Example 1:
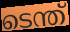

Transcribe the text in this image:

ടെന്ത്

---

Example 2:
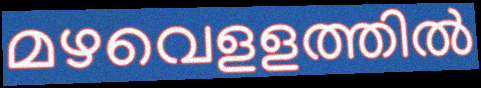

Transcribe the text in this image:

മഴവെളളത്തിൽ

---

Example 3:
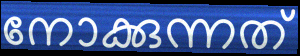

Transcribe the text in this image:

നോക്കുന്നത്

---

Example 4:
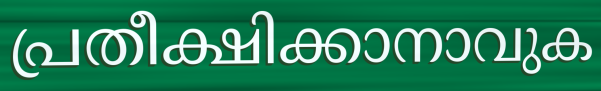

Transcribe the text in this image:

പ്രതീക്ഷിക്കാനാവുക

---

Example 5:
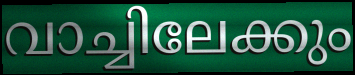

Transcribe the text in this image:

വാച്ചിലേക്കും